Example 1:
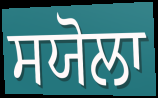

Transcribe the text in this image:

ਸਯੋਲਾ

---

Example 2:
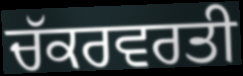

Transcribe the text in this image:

ਚੱਕਰਵਰਤੀ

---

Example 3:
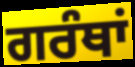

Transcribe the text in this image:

ਗਰੰਥਾਂ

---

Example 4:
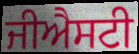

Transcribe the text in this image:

ਜੀਐਸਟੀ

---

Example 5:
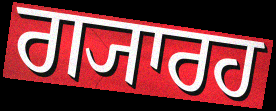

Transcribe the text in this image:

ਗ੍ਯਾਰਹ